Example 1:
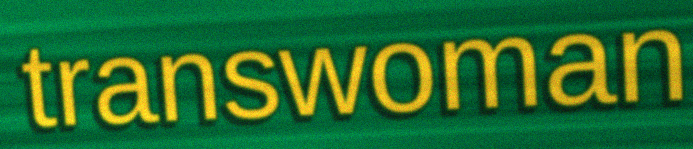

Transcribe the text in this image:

transwoman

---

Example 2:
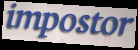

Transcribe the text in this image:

impostor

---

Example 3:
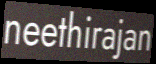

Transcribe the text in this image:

neethirajan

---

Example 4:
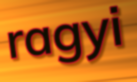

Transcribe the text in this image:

ragyi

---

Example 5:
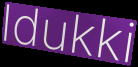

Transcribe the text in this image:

Idukki